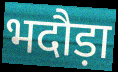
भदौड़ा